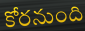
కోరనుంది